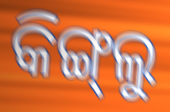
କିଙ୍ଗ୍‌ଲୁ